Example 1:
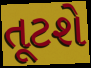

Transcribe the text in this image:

તૂટશે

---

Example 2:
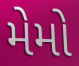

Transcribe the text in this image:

મેમો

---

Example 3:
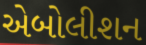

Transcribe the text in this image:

એબોલીશન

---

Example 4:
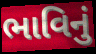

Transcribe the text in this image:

ભાવિનું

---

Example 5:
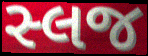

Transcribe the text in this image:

સ્લજ